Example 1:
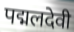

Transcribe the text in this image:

पद्मलदेवी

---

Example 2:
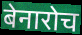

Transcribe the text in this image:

बेनारोच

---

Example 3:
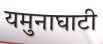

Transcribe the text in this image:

यमुनाघाटी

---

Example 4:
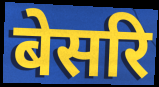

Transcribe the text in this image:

बेसरि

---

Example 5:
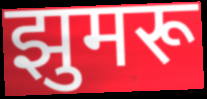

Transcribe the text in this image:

झुमरू